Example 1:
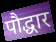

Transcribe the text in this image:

पौद्धार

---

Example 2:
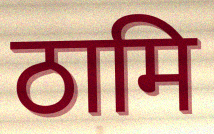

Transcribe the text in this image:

ठामि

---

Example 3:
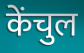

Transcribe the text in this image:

केंचुल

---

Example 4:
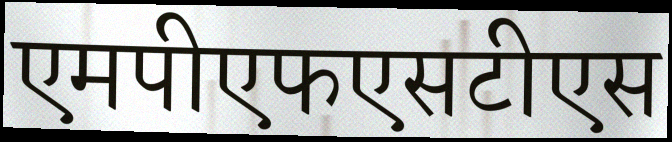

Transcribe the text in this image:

एमपीएफएसटीएस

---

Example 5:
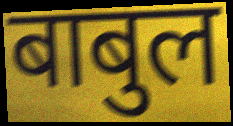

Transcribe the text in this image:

बाबुल